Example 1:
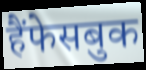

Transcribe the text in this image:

हैंफेसबुक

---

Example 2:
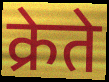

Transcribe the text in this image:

क्रेते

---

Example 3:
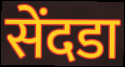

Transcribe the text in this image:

सेंदडा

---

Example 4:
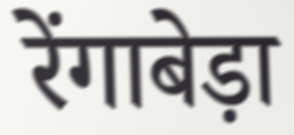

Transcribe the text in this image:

रेंगाबेड़ा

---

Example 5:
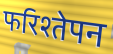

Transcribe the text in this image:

फरिश्तेपन